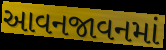
આવનજાવનમાં